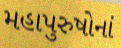
મહાપુરુષોનાં